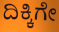
ದಿಕ್ಕಿಗೇ